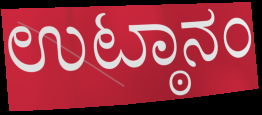
ಉಟ್ಠಾನಂ